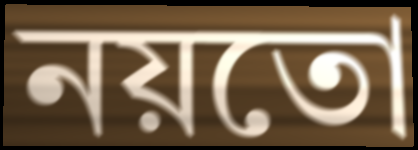
নয়তো